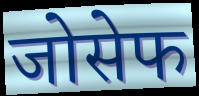
जोसेफ